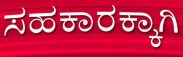
ಸಹಕಾರಕ್ಕಾಗಿ